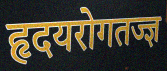
हृदयरोगतज्ज्ञ